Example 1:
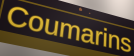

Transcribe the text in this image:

Coumarins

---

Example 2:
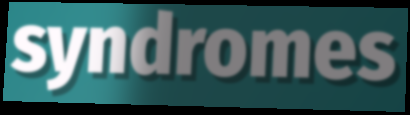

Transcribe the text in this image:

syndromes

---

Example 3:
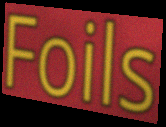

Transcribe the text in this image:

Foils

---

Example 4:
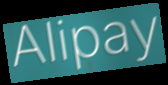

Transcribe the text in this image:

Alipay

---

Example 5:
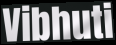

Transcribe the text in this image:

Vibhuti